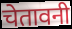
चेतावनी